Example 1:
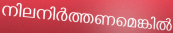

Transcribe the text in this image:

നിലനിർത്തണമെങ്കിൽ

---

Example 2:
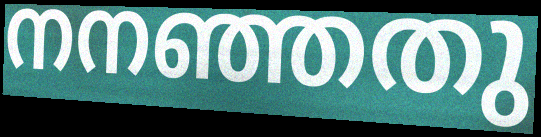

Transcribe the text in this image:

നനഞ്ഞതു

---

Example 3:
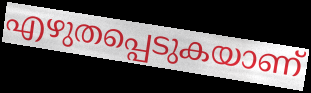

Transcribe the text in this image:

എഴുതപ്പെടുകയാണ്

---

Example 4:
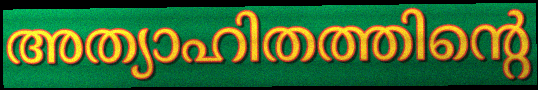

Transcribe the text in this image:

അത്യാഹിതത്തിന്റെ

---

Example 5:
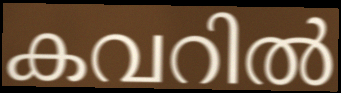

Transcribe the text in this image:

കവറിൽ